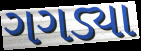
ગગડ્યા